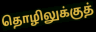
தொழிலுக்குத்